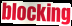
blocking